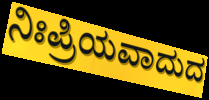
ನಿಃಪ್ರಿಯವಾದುದ